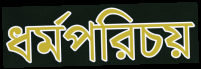
ধর্মপরিচয়